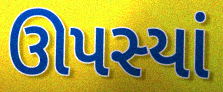
ઊપસ્યાં